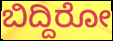
ಬಿದ್ದಿರೋ